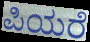
ಪಿಯರೆ